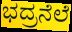
ಭದ್ರನೆಲೆ